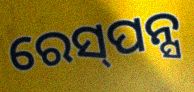
ରେସ୍‌ପନ୍ସ